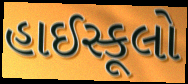
હાઈસ્કૂલો